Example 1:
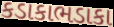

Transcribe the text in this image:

કડાકાભડાકા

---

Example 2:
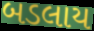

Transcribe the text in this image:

બડલાય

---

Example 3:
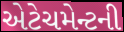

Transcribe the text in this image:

એટેચમેન્ટની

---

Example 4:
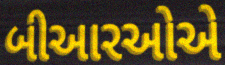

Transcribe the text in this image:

બીઆરઓએ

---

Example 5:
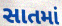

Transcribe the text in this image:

સાતમાં